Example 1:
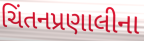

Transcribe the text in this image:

ચિંતનપ્રણાલીના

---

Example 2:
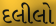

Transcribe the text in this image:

દલીલો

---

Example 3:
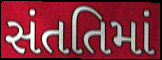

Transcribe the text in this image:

સંતતિમાં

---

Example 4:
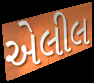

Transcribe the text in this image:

એલીલ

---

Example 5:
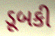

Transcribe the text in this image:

ડૂબકી